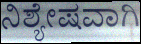
ನಿಶ್ಯೇಷವಾಗಿ